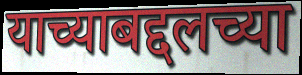
याच्याबद्दलच्या